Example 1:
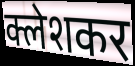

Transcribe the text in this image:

क्लेशकर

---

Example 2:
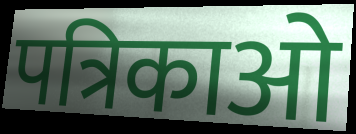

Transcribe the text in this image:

पत्रिकाओ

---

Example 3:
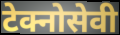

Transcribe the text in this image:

टेक्नोसेवी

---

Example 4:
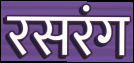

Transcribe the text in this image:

रसरंग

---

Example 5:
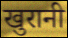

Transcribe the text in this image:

खुरानी